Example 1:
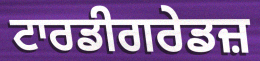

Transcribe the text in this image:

ਟਾਰਡੀਗਰੇਡਜ਼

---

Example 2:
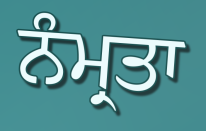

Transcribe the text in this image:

ਨੰਮ੍ਰਤਾ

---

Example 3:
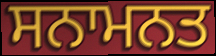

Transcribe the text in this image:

ਸਨਾਮਨਤ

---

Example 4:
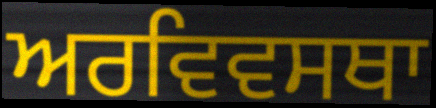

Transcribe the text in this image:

ਅਰਵਿਵਸਥਾ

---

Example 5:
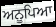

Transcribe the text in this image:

ਅਨੂਪਿਆ